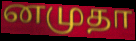
னமுதா